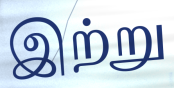
இற்று